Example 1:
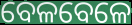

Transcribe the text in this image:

ବେଳବେଳେ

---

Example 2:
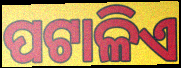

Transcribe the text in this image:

ପଟାଳିଏ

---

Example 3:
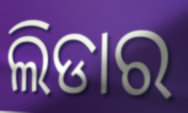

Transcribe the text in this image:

ଲିଡାର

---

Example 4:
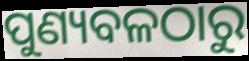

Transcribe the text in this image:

ପୁଣ୍ୟବଳଠାରୁ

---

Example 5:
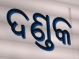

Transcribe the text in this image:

ଦଣ୍ଡକ